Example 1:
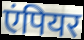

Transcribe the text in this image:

एंपियर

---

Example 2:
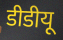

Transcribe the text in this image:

डीडीयू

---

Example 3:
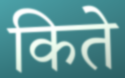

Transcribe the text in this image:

किते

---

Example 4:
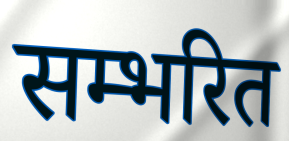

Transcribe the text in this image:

सम्भरित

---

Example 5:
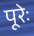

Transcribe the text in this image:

पूरेः